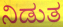
ನಿಡುತ